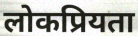
लोकप्रियता